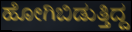
ಹೋಗಿಬಿಡುತ್ತಿದ್ದ